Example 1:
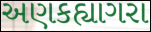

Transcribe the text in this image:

અણકહ્યાગરા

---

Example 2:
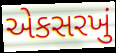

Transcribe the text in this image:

એકસરખું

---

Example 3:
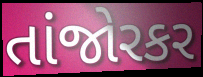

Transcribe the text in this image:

તાંજોરકર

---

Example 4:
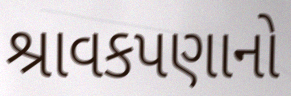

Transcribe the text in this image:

શ્રાવકપણાનો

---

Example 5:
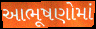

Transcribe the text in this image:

આભૂષણોમાં